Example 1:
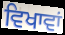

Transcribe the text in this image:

ਵਿਖਾਵਾਂ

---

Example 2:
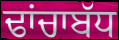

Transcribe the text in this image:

ਢਾਂਚਾਬੱਧ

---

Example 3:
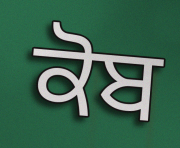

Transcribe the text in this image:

ਕੋਬ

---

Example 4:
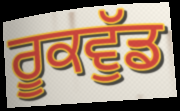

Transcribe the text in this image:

ਰੂਕਵੁੱਡ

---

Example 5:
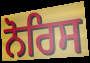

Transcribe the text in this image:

ਨੋਰਿਸ